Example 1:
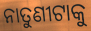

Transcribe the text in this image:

ନାତୁଣୀଟାକୁ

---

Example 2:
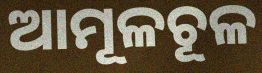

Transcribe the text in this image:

ଆମୂଳଚୂଳ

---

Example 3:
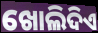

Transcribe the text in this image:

ଖୋଲିଦିଏ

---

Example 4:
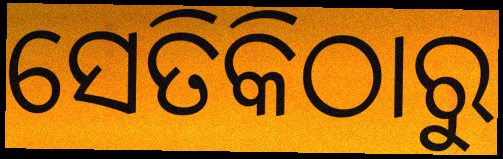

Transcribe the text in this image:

ସେତିକିଠାରୁ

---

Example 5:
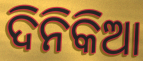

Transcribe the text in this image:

ଦିନିକିଆ